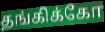
தங்கிக்கோ